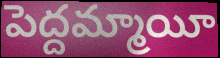
పెద్దమ్మాయీ